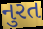
નુરત